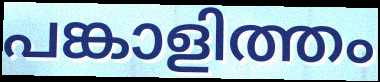
പങ്കാളിത്തം